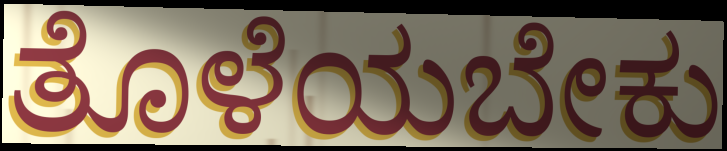
ತೊಳೆಯಬೇಕು